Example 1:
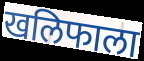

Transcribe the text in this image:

खलिफाला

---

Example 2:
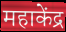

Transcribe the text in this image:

महाकेंद्र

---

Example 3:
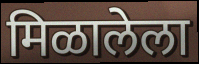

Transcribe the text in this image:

मिळालेला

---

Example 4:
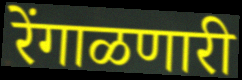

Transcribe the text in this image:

रेंगाळणारी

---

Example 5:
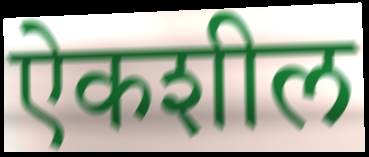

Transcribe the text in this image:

ऐकशील